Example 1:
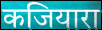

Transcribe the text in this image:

कजियारा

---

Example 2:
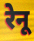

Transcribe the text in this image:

रेनू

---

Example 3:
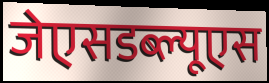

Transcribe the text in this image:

जेएसडब्ल्यूएस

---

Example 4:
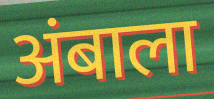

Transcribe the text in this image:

अंबाला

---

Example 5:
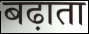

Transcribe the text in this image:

बढ़ाता